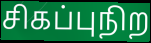
சிகப்புநிற